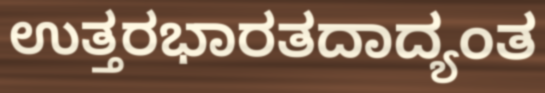
ಉತ್ತರಭಾರತದಾದ್ಯಂತ